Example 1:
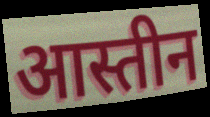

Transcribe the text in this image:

आस्तीन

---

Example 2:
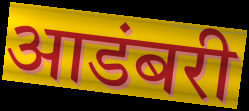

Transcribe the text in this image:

आडंबरी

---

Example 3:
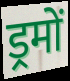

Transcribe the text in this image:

ड्रमों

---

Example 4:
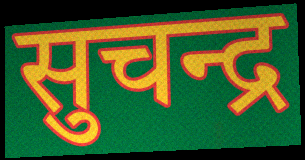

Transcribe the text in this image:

सुचन्द्र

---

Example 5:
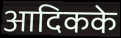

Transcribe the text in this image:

आदिकके